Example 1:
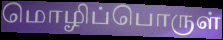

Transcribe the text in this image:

மொழிப்பொருள்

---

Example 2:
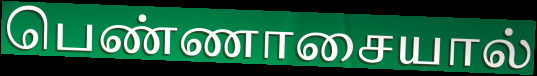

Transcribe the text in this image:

பெண்ணாசையால்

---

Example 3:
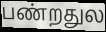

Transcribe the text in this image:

பண்றதுல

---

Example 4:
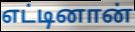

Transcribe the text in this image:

எட்டினான்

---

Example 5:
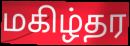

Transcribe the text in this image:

மகிழ்தர